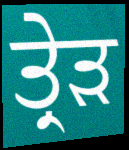
ਤ੍ਰੇੜ